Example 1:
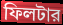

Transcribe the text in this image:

ফিলটার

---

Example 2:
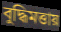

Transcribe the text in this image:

বুদ্ধিমত্তায়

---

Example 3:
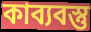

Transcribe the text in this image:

কাব্যবস্তু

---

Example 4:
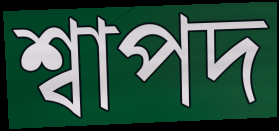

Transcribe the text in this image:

শ্বাপদ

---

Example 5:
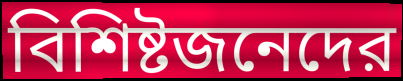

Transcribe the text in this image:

বিশিষ্টজনেদের